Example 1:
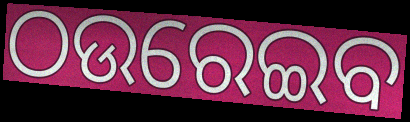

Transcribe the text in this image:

ଠଉରେଇବ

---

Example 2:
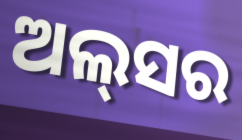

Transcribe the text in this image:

ଅଲ୍‌ସର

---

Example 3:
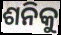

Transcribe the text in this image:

ଶନିକୁ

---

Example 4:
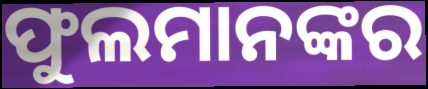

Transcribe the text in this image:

ଫୁଲମାନଙ୍କର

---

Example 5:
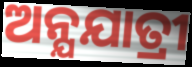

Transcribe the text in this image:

ଅନ୍ଯଯାତ୍ରୀ